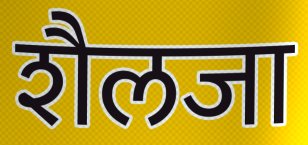
शैलजा